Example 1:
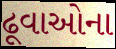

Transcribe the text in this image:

ઢૂવાઓના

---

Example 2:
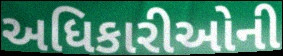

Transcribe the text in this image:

અધિકારીઓની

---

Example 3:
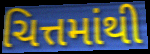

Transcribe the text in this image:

ચિત્તમાંથી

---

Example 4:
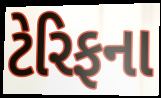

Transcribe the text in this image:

ટેરિફના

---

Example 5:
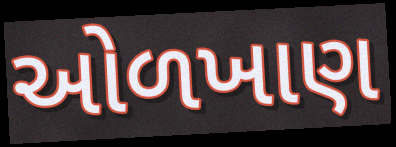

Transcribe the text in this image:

ઓળખાણ